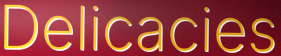
Delicacies